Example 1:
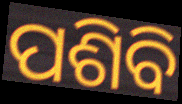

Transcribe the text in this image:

ପଶିବି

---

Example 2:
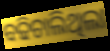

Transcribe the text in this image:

ବଢିଚାଲିଥିଲା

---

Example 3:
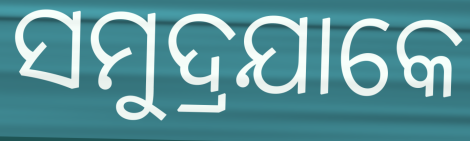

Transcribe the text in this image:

ସମୁଦ୍ରଯାକେ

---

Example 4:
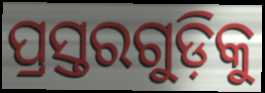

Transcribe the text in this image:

ପ୍ରସ୍ତରଗୁଡ଼ିକୁ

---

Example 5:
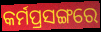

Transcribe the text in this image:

କର୍ମପ୍ରସଙ୍ଗରେ